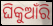
ଘିକୁଆଁରି